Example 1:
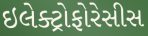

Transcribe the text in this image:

ઇલેક્ટ્રોફોરેસીસ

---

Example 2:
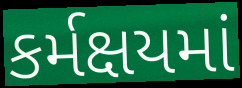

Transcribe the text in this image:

કર્મક્ષયમાં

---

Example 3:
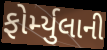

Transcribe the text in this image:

ફોર્મ્યુલાની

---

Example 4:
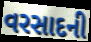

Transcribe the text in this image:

વરસાદની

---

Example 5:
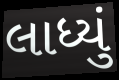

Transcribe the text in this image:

લાધ્યું